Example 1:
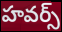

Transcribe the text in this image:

హవర్స్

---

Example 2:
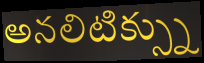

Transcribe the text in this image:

అనలిటిక్స్ను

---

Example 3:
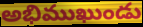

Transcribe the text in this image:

అభిముఖుండు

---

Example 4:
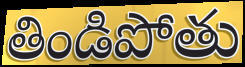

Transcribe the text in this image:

తిండిపోతు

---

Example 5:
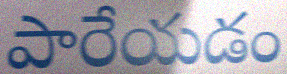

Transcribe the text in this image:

పారేయడం